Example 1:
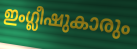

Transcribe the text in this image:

ഇംഗ്ലീഷുകാരും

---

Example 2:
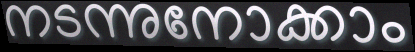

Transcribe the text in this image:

നടന്നുനോക്കാം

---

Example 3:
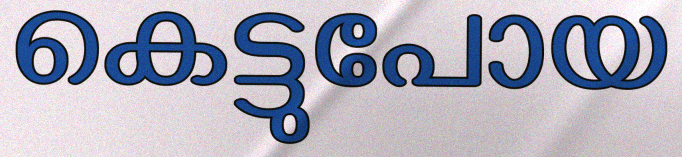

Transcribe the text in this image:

കെട്ടുപോയ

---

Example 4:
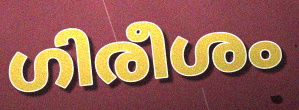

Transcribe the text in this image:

ഗിരീശം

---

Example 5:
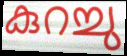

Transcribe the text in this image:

കുറച്ചു